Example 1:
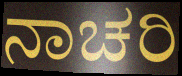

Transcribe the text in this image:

ನಾಚರಿ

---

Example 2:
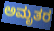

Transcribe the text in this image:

ಅಮೃತರ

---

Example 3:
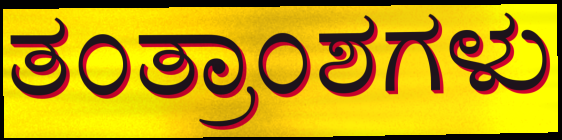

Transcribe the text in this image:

ತಂತ್ರಾಂಶಗಳು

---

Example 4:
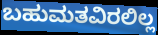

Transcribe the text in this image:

ಬಹುಮತವಿರಲಿಲ್ಲ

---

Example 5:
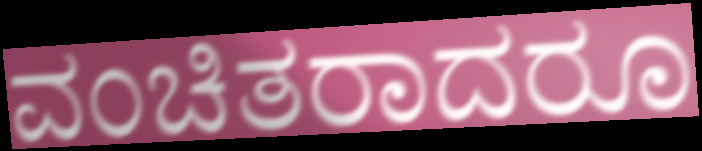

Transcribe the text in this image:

ವಂಚಿತರಾದರೂ